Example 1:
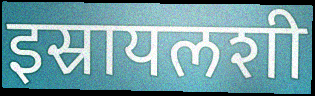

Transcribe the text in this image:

इस्रायलशी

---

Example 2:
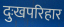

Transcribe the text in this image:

दुःखपरिहार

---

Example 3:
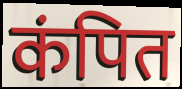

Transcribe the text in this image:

कंपित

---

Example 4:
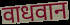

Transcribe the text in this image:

वाधवान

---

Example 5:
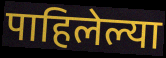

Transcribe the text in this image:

पाहिलेल्या